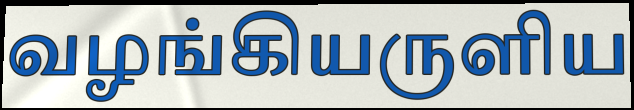
வழங்கியருளிய